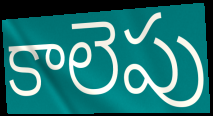
కాలెపు